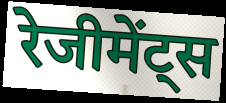
रेजीमेंट्स